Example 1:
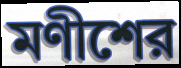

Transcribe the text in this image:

মণীশের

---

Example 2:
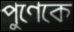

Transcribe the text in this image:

পুণেকে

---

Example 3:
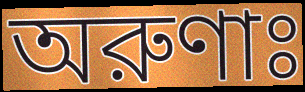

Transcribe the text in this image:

অরুণাঃ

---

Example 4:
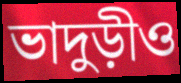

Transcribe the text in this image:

ভাদুড়ীও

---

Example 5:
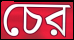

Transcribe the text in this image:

চের